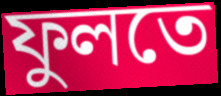
ফুলতে